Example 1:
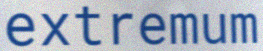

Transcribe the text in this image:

extremum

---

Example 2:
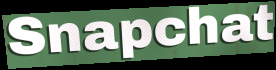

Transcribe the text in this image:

Snapchat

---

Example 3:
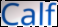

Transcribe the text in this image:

Calf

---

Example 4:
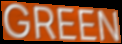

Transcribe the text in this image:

GREEN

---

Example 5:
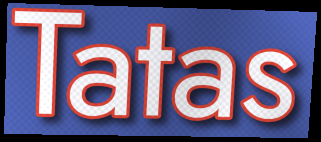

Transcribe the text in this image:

Tatas